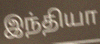
இந்தியா